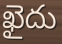
ఖైదు